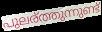
പുലര്ത്തുന്നുണ്ട്